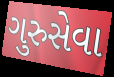
ગુરુસેવા